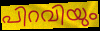
പിറവിയും